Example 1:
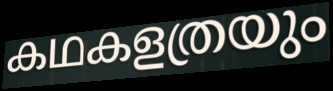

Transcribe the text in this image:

കഥകളത്രയും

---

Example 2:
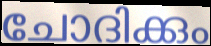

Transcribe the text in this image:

ചോദിക്കും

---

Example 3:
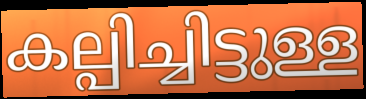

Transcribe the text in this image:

കല്പിച്ചിട്ടുള്ള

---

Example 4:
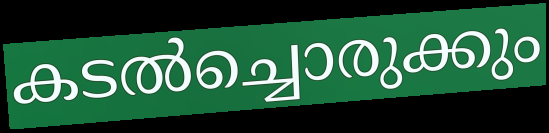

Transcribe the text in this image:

കടൽച്ചൊരുക്കും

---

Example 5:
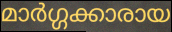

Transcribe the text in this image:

മാർഗ്ഗക്കാരായ